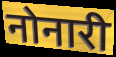
नोनारी